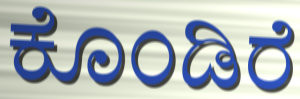
ಕೊಂಡಿರೆ